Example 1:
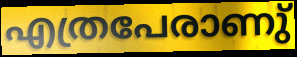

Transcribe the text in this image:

എത്രപേരാണു്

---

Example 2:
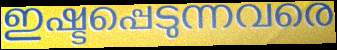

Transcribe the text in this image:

ഇഷ്ടപ്പെടുന്നവരെ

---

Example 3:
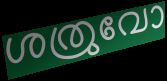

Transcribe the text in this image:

ശത്രുവോ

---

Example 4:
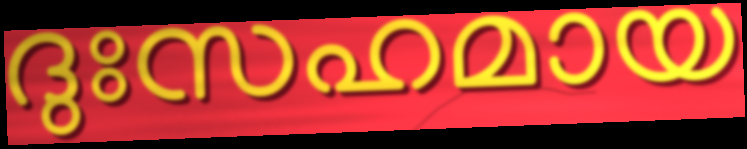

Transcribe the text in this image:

ദുഃസഹമായ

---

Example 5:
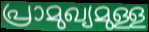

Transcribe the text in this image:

പ്രാമുഖ്യമുള്ള